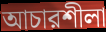
আচারশীলা